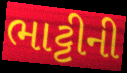
ભાટ્ટીની